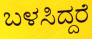
ಬಳಸಿದ್ದರೆ